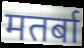
मतर्बा